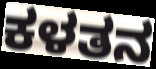
ಕಳತನ